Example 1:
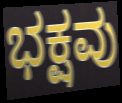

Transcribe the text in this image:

ಭಕ್ಷವು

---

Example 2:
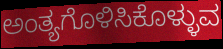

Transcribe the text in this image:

ಅಂತ್ಯಗೊಳಿಸಿಕೊಳ್ಳುವ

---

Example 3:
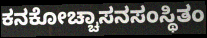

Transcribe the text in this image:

ಕನಕೋಚ್ಚಾಸನಸಂಸ್ಥಿತಂ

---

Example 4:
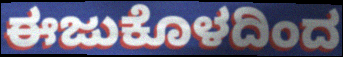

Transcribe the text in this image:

ಈಜುಕೊಳದಿಂದ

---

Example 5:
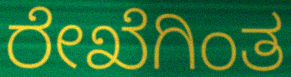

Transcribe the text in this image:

ರೇಖೆಗಿಂತ